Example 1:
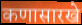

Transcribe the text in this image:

कणासारखे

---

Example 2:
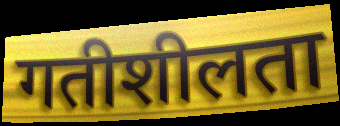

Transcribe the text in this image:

गतीशीलता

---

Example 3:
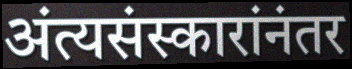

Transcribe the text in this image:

अंत्यसंस्कारांनंतर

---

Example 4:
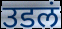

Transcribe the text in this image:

उडलं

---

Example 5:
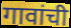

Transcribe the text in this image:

गावांची